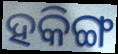
ହକିଙ୍ଗ